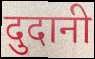
दुदानी